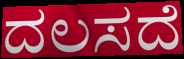
ದಲಸದೆ